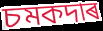
চমকদাৰ